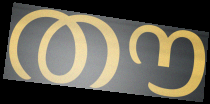
തൗ